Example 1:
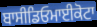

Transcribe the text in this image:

ਬਾਸੀਡਿਓਮਾਈਕੋਟਾ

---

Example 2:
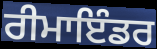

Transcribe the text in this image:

ਰੀਮਾਇੰਡਰ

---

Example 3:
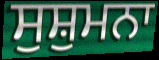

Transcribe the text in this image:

ਸੁਸ਼ੁਮਨਾ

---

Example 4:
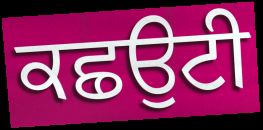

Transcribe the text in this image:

ਕਛਉਟੀ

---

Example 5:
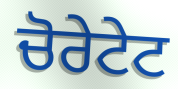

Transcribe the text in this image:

ਚੋਰੇਟੇਟ